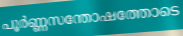
പൂർണ്ണസന്തോഷത്തോടെ